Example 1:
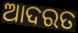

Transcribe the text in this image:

ଆଦରତ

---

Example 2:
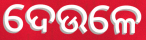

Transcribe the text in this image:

ଦେଉଳେ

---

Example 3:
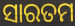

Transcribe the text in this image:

ସାରତମ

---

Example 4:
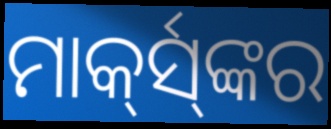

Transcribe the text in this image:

ମାର୍କ୍‍ସ୍‍ଙ୍କର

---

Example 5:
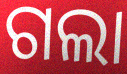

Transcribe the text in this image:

ଗଲା